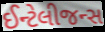
ઈન્ટેલીજન્સ